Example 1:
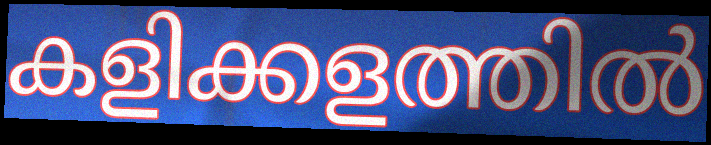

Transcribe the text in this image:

കളിക്കളത്തിൽ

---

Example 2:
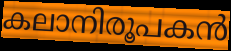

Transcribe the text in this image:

കലാനിരൂപകൻ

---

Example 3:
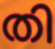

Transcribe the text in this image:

തി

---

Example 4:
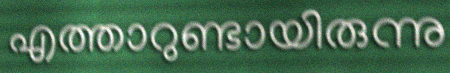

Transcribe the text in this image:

എത്താറുണ്ടായിരുന്നു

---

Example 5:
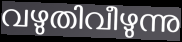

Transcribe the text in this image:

വഴുതിവീഴുന്നു